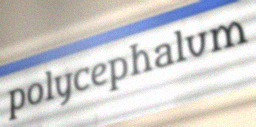
polycephalum